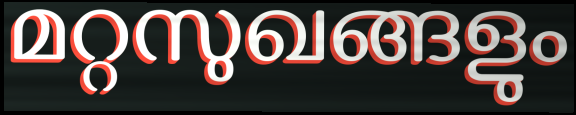
മറ്റസുഖങ്ങളും